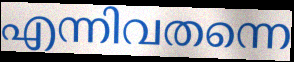
എന്നിവതന്നെ